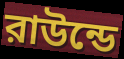
রাউন্ডে